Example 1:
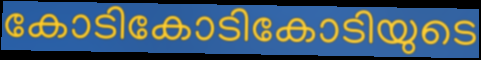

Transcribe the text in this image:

കോടികോടികോടിയുടെ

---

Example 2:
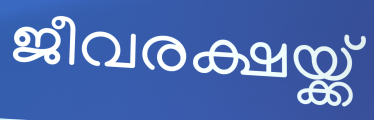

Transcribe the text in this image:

ജീവരക്ഷയ്ക്ക്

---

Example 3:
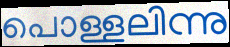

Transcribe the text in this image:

പൊള്ളലിന്നു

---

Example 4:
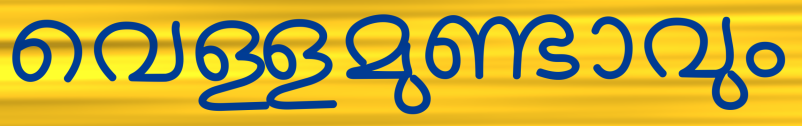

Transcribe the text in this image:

വെള്ളമുണ്ടാവും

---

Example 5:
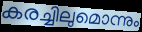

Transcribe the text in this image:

കരച്ചിലുമൊന്നും